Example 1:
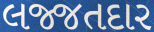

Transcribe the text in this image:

લજ્જતદાર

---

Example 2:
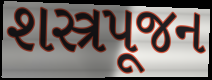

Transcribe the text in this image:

શસ્ત્રપૂજન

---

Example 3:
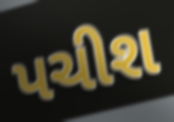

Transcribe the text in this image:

પચીશ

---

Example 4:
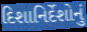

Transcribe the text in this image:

દિશાનિર્દેશોનું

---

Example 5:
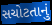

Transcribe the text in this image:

સચોટતાનું